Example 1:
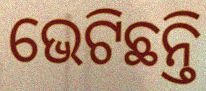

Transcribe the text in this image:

ଭେଟିଛନ୍ତି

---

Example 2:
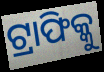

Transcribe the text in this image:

ଟ୍ରାଫିକ୍କୁ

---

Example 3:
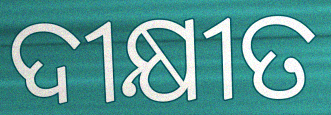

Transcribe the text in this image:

ଦୀକ୍ଷୀତ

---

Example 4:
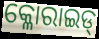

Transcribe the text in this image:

କ୍ଳୋରାଇଡ୍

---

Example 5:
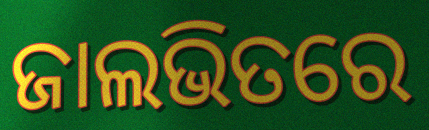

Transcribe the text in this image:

ଜାଲଭିତରେ